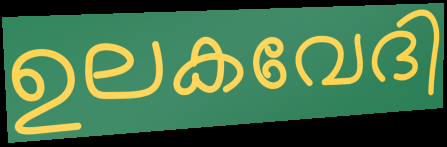
ഉലകവേദി